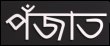
পঁজাত